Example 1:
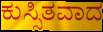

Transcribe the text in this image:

ಕುಸ್ಸಿತವಾದ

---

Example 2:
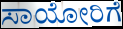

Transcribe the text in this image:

ಸಾಯೋರಿಗೆ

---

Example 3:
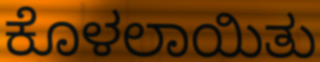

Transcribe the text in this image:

ಕೊಳಲಾಯಿತು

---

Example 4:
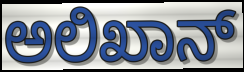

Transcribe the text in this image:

ಅಲಿಖಾನ್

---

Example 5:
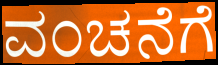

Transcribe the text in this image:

ವಂಚನೆಗೆ